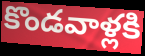
కొండవాళ్లకి